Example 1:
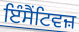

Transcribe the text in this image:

ਇੰਸੈਂਟਿਵਜ਼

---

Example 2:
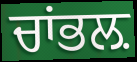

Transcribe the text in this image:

ਚਾਂਭਲ਼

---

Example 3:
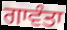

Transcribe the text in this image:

ਗਾਵੰਤਾ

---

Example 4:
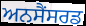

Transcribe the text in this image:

ਅਨਸੈਂਸਰਡ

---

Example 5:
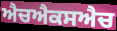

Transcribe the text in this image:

ਐਚਐਕਸਐਚ